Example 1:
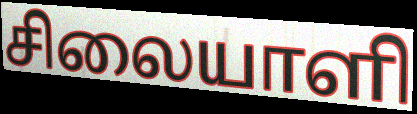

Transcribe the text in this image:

சிலையாளி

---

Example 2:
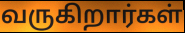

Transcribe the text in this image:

வருகிறார்கள்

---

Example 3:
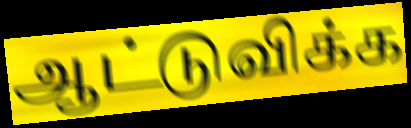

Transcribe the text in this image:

ஆட்டுவிக்க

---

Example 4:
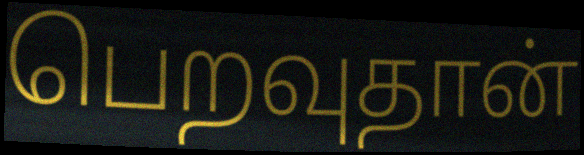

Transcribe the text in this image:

பெறவுதான்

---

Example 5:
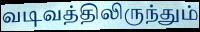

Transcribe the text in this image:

வடிவத்திலிருந்தும்